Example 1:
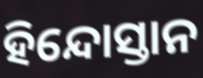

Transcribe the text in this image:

ହିନ୍ଦୋସ୍ତାନ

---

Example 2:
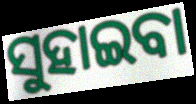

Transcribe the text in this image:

ସୁହାଇବା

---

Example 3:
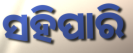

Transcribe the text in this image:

ସହିପାରି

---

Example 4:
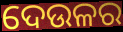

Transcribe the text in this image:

ଦେଉଳର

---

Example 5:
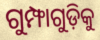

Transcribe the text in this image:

ଗୁମ୍ଫାଗୁଡ଼ିକୁ